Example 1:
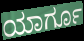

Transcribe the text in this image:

ಯಾರ್ಗೂ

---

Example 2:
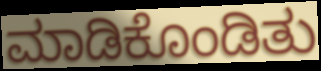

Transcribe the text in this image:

ಮಾಡಿಕೊಂಡಿತು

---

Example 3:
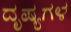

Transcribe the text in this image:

ದೃಷ್ಯಗಳ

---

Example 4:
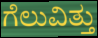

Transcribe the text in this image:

ಗೆಲುವಿತ್ತು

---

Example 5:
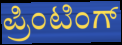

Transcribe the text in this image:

ಪ್ರಿಂಟಿಂಗ್